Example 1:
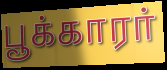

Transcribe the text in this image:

பூக்காரர்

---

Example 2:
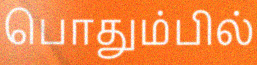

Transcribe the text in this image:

பொதும்பில்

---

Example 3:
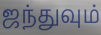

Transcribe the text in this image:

ஜந்துவும்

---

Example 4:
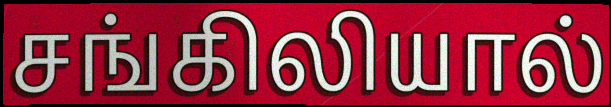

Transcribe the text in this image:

சங்கிலியால்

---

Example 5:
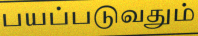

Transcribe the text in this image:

பயப்படுவதும்